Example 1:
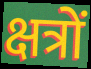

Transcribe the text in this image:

क्षत्रों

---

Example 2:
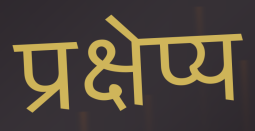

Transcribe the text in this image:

प्रक्षेप्य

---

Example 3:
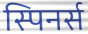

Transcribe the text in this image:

स्पिनर्स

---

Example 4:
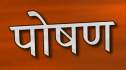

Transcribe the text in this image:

पोषण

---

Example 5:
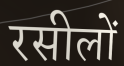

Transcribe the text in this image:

रसीलों